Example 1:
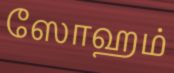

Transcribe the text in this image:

ஸோஹம்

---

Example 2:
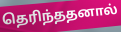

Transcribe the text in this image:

தெரிந்ததனால்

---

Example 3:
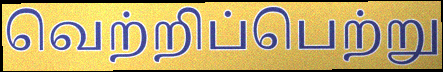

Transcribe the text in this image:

வெற்றிப்பெற்று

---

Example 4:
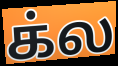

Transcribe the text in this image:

க்ல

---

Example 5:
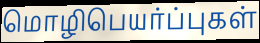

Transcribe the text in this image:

மொழிபெயர்ப்புகள்